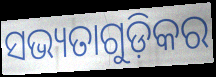
ସଭ୍ୟତାଗୁଡ଼ିକର